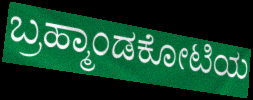
ಬ್ರಹ್ಮಾಂಡಕೋಟಿಯ